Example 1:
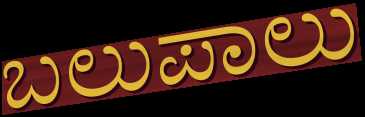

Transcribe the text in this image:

ಬಲುಪಾಲು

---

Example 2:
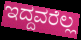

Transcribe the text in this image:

ಇದ್ದವರೆಲ್ಲ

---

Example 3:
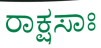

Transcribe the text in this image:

ರಾಕ್ಷಸಾಃ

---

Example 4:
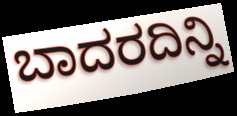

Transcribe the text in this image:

ಬಾದರದಿನ್ನಿ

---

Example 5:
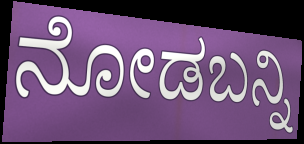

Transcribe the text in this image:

ನೋಡಬನ್ನಿ